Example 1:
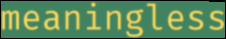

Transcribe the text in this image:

meaningless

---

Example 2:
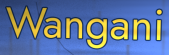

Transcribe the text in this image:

Wangani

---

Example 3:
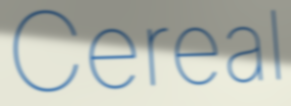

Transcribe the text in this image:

Cereal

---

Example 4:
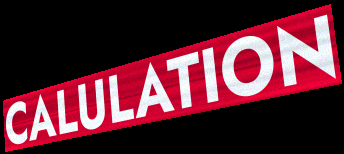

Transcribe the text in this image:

CALULATION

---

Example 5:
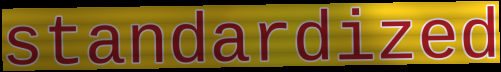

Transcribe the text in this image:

standardized